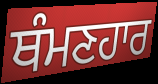
ਥੰਮਣਹਾਰ